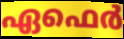
ഏഫെർ